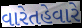
વારેતહેવારે